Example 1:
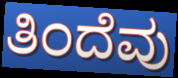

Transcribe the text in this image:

ತಿಂದೆವು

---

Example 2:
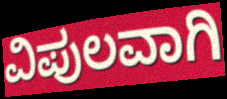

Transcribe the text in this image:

ವಿಪುಲವಾಗಿ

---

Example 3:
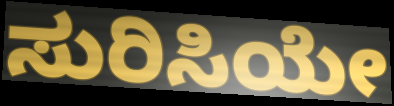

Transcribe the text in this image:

ಸುರಿಸಿಯೇ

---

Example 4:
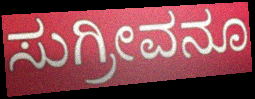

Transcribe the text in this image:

ಸುಗ್ರೀವನೂ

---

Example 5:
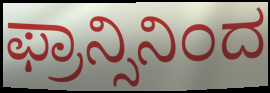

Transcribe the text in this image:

ಫ್ರಾನ್ಸಿನಿಂದ